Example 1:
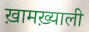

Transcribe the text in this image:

ख़ामख़्याली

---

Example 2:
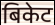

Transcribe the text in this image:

बिकेट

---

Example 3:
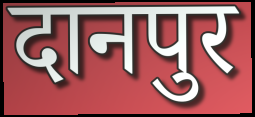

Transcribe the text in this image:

दानपुर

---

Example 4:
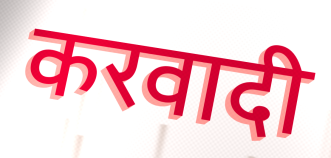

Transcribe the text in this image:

करवादी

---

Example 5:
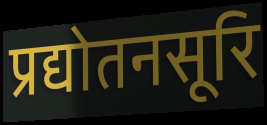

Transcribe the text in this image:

प्रद्योतनसूरि